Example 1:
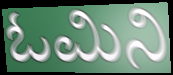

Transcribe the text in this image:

ಓಮಿನಿ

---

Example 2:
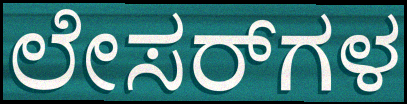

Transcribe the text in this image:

ಲೇಸರ್‌ಗಳ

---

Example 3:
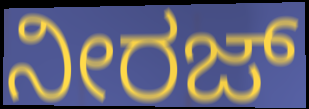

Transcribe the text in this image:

ನೀರಜ್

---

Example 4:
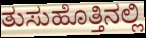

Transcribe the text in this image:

ತುಸುಹೊತ್ತಿನಲ್ಲಿ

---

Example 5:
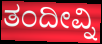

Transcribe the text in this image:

ತಂದೀವ್ನಿ